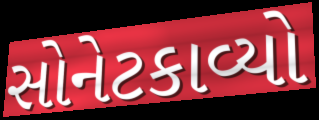
સોનેટકાવ્યો